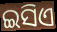
ଇସିଏ